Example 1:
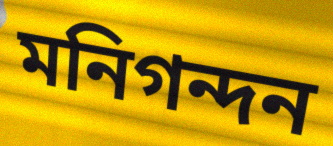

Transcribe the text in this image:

মনিগন্দন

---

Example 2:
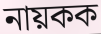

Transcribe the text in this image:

নায়কক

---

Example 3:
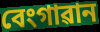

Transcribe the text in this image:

বেংগাৱান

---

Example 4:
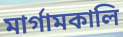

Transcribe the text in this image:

মাৰ্গামকালি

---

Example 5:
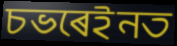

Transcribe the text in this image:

চভৰেইনত